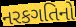
નરકગતિનો